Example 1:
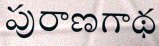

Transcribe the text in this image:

పురాణగాథ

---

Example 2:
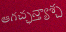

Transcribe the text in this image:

ఆగచ్ఛన్త్యాశ్చ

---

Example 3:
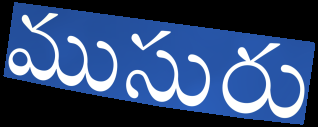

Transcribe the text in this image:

ముసురు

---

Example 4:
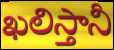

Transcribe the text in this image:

ఖలిస్తానీ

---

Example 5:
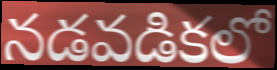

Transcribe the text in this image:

నడవడికలో